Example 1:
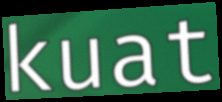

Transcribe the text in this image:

kuat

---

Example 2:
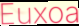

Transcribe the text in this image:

Euxoa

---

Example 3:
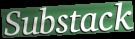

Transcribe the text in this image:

Substack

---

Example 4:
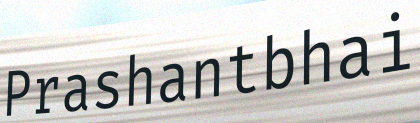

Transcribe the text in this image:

Prashantbhai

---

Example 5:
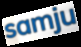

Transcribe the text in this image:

samju